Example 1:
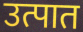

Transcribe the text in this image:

उत्पात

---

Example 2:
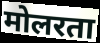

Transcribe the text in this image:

मोलरता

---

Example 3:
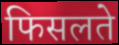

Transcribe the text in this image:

फिसलते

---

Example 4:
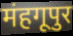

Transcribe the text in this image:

मंहगूपुर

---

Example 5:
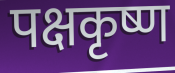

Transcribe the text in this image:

पक्षकृष्ण